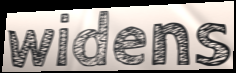
widens